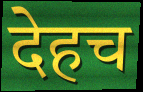
देहच